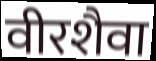
वीरशैवा